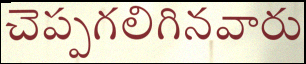
చెప్పగలిగినవారు